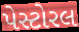
પેસ્ટોરલ